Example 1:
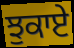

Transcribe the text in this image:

ਝੁਕਾਏ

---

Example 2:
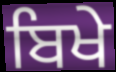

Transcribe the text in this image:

ਬਿਖੇ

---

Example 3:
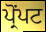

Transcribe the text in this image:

ਪ੍ਰੋਂਪਟ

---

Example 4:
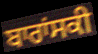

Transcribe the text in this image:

ਬਾਰਾਂਸਕੀ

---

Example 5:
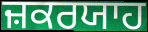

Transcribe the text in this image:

ਜ਼ਕਰਯਾਹ